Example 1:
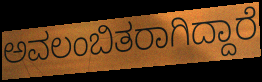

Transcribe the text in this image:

ಅವಲಂಬಿತರಾಗಿದ್ದಾರೆ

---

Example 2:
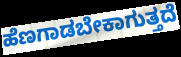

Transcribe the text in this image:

ಹೆಣಗಾಡಬೇಕಾಗುತ್ತದೆ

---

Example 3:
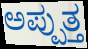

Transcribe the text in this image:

ಅಪ್ಪುತ್ತ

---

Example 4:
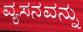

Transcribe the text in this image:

ವ್ಯಸನವನ್ನು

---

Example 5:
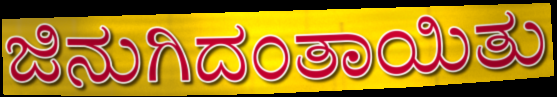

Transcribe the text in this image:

ಜಿನುಗಿದಂತಾಯಿತು